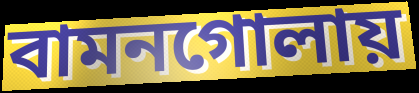
বামনগোলায়